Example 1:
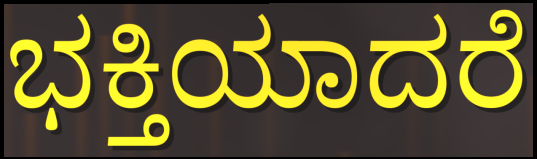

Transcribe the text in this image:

ಭಕ್ತಿಯಾದರೆ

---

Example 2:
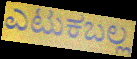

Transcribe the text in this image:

ಎಟುಕಬಲ್ಲ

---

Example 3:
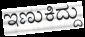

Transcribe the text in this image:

ಇಣುಕಿದ್ದು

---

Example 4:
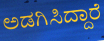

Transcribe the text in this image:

ಅಡಗಿಸಿದ್ದಾರೆ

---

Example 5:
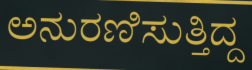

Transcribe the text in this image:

ಅನುರಣಿಸುತ್ತಿದ್ದ